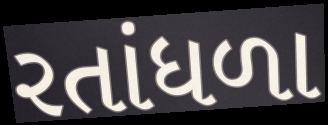
રતાંધળા